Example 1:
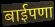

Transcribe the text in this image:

बाईपणा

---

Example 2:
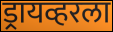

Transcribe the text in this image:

ड्रायव्हरला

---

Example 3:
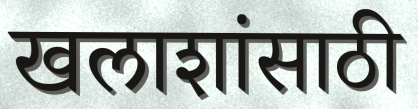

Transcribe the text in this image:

खलाशांसाठी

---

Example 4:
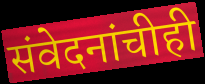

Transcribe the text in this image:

संवेदनांचीही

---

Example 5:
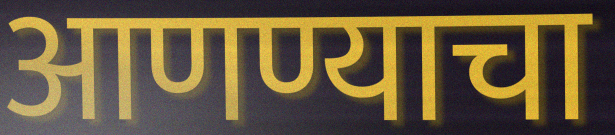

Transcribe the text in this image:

आणण्याचा